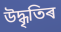
উদ্ধৃতিৰ